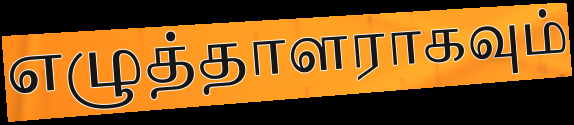
எழுத்தாளராகவும்